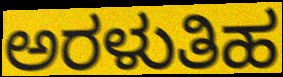
ಅರಳುತಿಹ